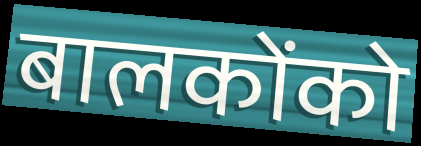
बालकोंको